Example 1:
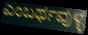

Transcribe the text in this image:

ಎಂಬರ್ಥವುಳ್ಳ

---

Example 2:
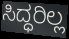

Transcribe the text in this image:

ಸಿದ್ಧರಿಲ್ಲ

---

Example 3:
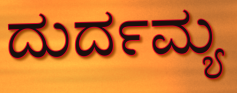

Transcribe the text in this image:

ದುರ್ದಮ್ಯ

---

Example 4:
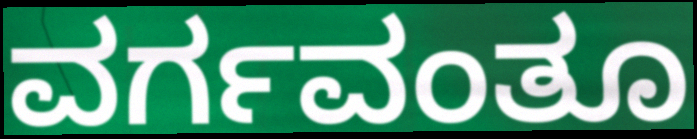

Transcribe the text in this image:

ವರ್ಗವಂತೂ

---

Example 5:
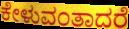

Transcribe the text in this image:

ಕೇಳುವಂತಾದರೆ